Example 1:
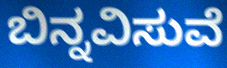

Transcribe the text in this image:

ಬಿನ್ನವಿಸುವೆ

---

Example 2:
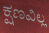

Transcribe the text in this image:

ಕ್ಷಣವಿಲ್ಲ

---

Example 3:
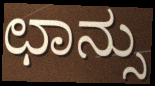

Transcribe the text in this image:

ಛಾನ್ಸು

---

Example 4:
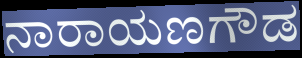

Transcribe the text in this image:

ನಾರಾಯಣಗೌಡ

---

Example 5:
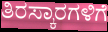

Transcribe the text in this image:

ತಿರಸ್ಕಾರಗಳಿಗೆ